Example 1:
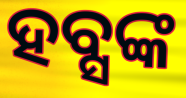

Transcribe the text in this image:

ହବ୍ସଙ୍କ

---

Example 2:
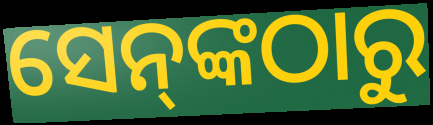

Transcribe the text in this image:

ସେନ୍‌ଙ୍କଠାରୁ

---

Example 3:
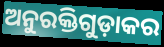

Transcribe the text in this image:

ଅନୁରକ୍ତିଗୁଡ଼ାକର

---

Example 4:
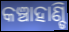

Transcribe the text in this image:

କଞ୍ଚାହାଣ୍ଡି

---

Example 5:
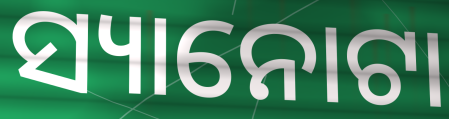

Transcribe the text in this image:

ସ୍ୟାନୋଟା